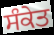
ਸੰਕੇਤ